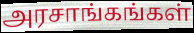
அரசாங்கங்கள்